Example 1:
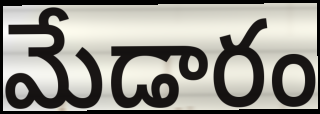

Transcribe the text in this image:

మేడారం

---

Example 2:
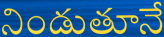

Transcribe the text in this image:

నిండుతూనే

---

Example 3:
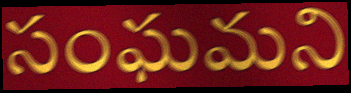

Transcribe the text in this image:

సంఘమని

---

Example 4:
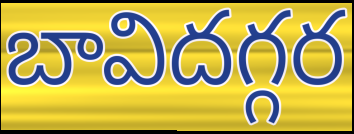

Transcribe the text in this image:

బావిదగ్గర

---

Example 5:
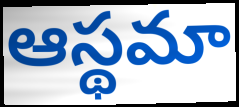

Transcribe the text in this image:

ఆస్థమా